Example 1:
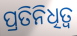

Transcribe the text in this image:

ପ୍ରତିନିଧିତ୍ୱ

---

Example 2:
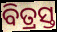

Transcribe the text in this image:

ବିତ୍ରସ୍ତ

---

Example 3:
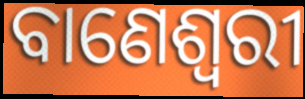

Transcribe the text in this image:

ବାଣେଶ୍ୱରୀ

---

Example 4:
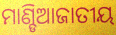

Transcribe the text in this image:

ମାଣ୍ଡିଆଜାତୀୟ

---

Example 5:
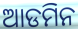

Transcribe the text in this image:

ଆଡମିନ